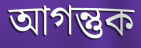
আগন্তুক